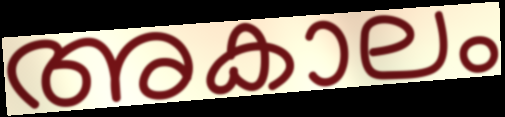
അകാലം